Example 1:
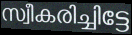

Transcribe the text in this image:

സ്വീകരിച്ചിട്ടേ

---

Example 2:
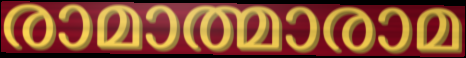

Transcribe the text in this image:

രാമാത്മാരാമ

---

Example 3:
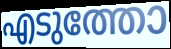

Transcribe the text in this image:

എടുത്തോ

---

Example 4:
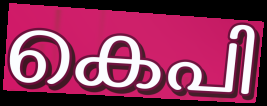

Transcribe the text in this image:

കെപി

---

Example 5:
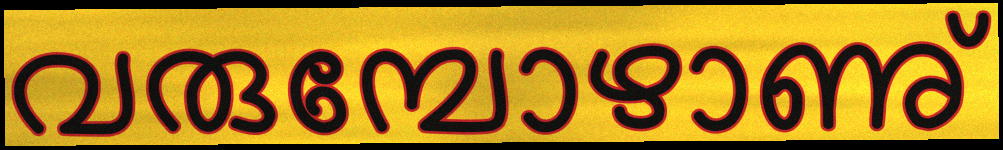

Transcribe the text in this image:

വരുമ്പോഴാണു്